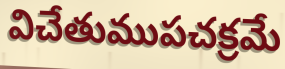
విచేతుముపచక్రమే